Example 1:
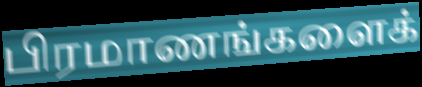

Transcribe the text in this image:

பிரமாணங்களைக்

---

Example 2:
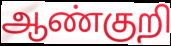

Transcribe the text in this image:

ஆண்குறி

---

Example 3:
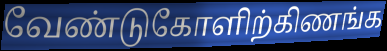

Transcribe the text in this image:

வேண்டுகோளிற்கிணங்க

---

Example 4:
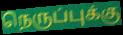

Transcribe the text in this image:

நெருப்புக்கு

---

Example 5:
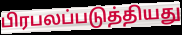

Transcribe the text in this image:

பிரபலப்படுத்தியது